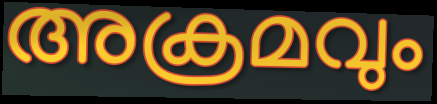
അക്രമവും